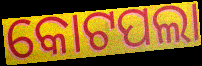
କୋଟପଲା